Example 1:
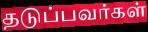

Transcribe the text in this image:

தடுப்பவர்கள்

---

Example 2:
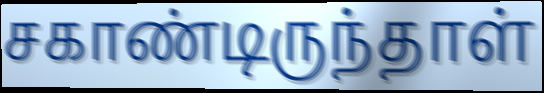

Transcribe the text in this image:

சகாண்டிருந்தாள்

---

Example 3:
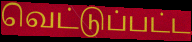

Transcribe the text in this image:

வெட்டுப்பட்ட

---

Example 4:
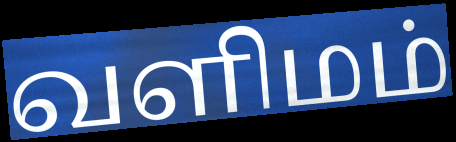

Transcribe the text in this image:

வளிமம்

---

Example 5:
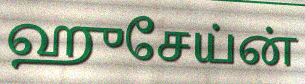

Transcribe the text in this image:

ஹுசேய்ன்